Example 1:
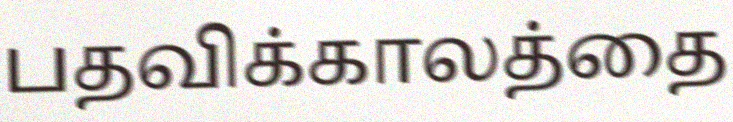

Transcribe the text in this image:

பதவிக்காலத்தை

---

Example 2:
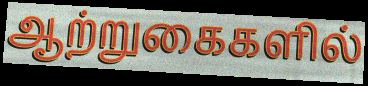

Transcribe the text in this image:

ஆற்றுகைகளில்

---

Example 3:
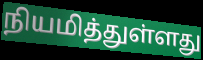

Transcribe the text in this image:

நியமித்துள்ளது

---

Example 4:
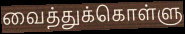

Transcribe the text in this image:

வைத்துக்கொள்ளு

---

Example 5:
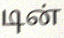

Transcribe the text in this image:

டின்